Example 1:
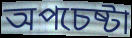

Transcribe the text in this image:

অপচেষ্টা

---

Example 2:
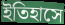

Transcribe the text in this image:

ইতিহাসে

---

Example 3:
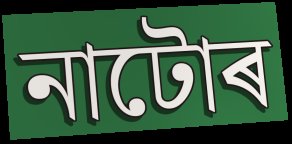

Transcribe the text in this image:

নাটোৰ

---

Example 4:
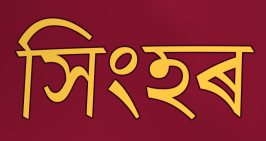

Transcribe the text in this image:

সিংহৰ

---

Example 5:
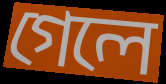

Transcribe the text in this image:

গেলে